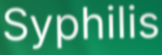
Syphilis